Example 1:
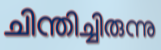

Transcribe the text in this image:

ചിന്തിച്ചിരുന്നു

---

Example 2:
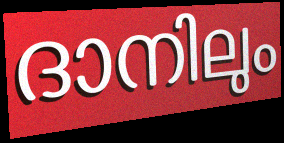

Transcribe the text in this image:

ദാനിലും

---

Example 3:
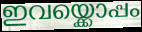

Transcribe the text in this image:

ഇവയ്ക്കൊപ്പം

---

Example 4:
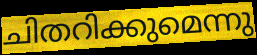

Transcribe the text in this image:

ചിതറിക്കുമെന്നു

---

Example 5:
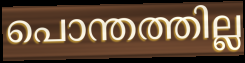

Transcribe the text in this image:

പൊന്തത്തില്ല